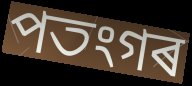
পতংগৰ